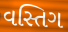
વસ્તિગ